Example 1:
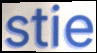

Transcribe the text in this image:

stie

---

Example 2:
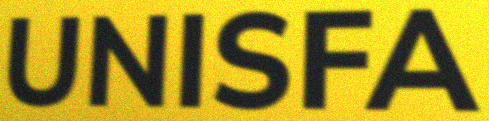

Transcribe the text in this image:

UNISFA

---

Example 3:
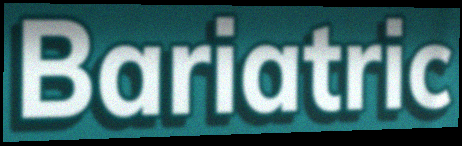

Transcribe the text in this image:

Bariatric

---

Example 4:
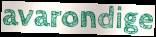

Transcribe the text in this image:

avarondige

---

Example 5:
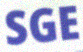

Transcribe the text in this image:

SGE